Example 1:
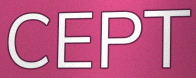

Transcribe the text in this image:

CEPT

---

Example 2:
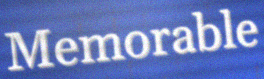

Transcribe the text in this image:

Memorable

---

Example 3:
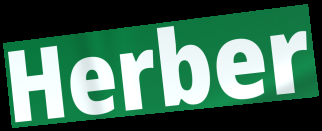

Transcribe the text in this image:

Herber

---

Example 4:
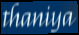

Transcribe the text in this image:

thaniya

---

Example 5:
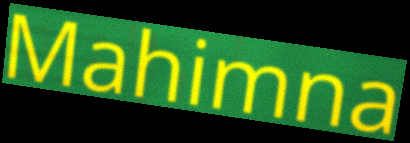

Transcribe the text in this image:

Mahimna